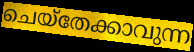
ചെയ്തേക്കാവുന്ന